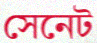
সেনেট